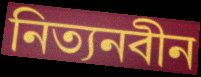
নিত্যনবীন